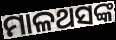
ମାଳଥସଙ୍କ